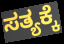
ಸತ್ಯಕ್ಕೆ